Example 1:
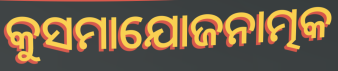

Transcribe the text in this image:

କୁସମାଯୋଜନାତ୍ମକ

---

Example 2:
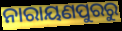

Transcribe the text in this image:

ନାରାୟଣପୁରରୁ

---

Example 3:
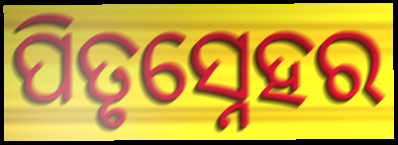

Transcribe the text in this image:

ପିତୃସ୍ନେହର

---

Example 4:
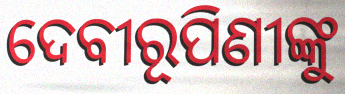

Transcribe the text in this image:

ଦେବୀରୂପିଣୀଙ୍କୁ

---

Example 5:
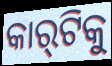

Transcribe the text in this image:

କାର୍‍ଟିକୁ